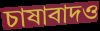
চাষাবাদও